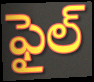
ఫైల్